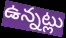
ఉన్నట్లు